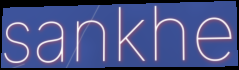
sankhe